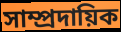
সাম্প্রদায়িক